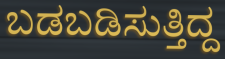
ಬಡಬಡಿಸುತ್ತಿದ್ದ